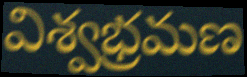
విశ్వభ్రమణ